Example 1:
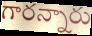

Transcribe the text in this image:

గారన్నారు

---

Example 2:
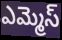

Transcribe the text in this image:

ఎమ్మెస్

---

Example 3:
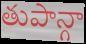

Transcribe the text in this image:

తుపాన్గా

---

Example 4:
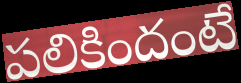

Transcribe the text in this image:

పలికిందంటే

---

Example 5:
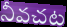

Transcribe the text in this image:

నీవచట